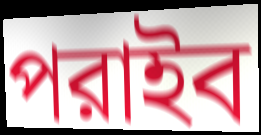
পরাইব